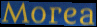
Morea